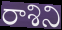
రాశిని